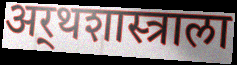
अर्थशास्त्राला